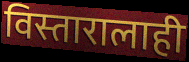
विस्तारालाही